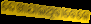
ଦେଖାଯାଇଥିବାବେଳେ